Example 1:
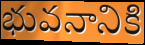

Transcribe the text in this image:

భువనానికి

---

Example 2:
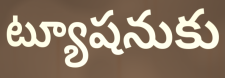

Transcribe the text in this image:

ట్యూషనుకు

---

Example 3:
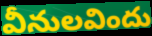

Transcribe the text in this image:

వీనులవిందు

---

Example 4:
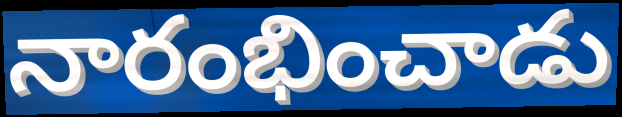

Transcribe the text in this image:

నారంభించాడు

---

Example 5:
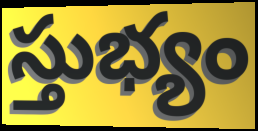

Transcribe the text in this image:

స్తుభ్యం